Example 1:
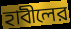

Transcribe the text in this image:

হাবীলের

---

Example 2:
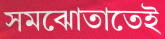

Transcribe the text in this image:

সমঝোতাতেই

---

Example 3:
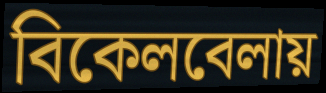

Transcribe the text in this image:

বিকেলবেলায়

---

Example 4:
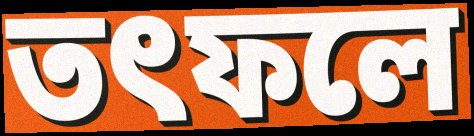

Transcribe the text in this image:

তৎফলে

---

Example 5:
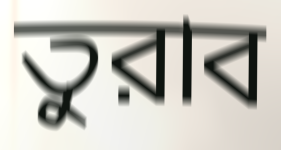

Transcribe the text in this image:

তুরাব